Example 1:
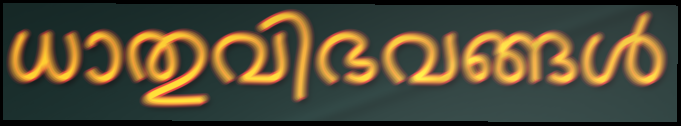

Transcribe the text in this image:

ധാതുവിഭവങ്ങൾ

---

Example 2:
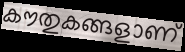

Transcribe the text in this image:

കൗതുകങ്ങളാണ്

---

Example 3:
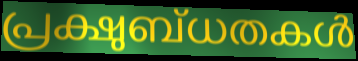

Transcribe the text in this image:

പ്രക്ഷുബ്ധതകൾ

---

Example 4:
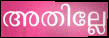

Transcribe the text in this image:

അതില്ലേ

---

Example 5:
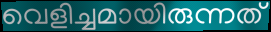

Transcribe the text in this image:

വെളിച്ചമായിരുന്നത്